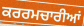
ਕਰਰਮਚਾਰੀਆਂ